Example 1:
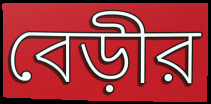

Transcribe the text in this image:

বেড়ীর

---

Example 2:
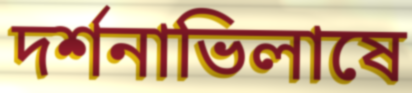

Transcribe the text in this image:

দর্শনাভিলাষে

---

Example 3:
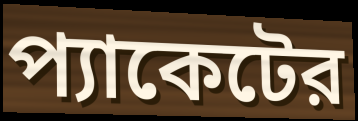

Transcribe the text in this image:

প্যাকেটের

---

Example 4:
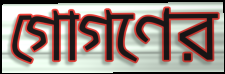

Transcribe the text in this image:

গোগণের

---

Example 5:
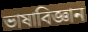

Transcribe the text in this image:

ভাষাবিজ্ঞান